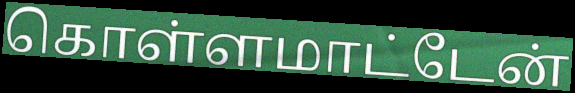
கொள்ளமாட்டேன்